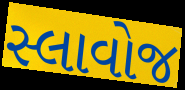
સ્લાવોજ